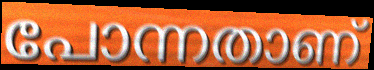
പോന്നതാണ്